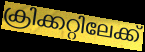
ക്രിക്കറ്റിലേക്ക്